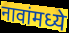
नावांमध्ये